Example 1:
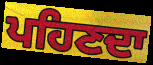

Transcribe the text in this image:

ਪਹਿਣਦਾ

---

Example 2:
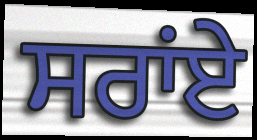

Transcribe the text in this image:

ਸਰਾਂਏ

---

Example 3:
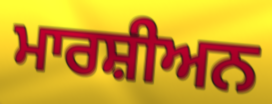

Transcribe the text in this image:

ਮਾਰਸ਼ੀਅਨ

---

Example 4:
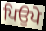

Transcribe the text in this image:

ਪਿਉਪੇ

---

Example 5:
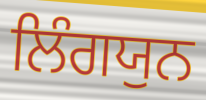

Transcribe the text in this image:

ਲਿੰਗਯੁਨ